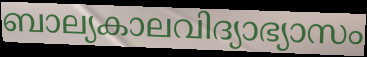
ബാല്യകാലവിദ്യാഭ്യാസം